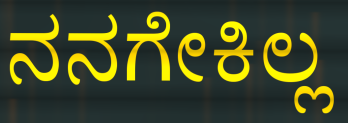
ನನಗೇಕಿಲ್ಲ